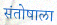
संतोषाला